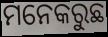
ମନେକରୁଛ